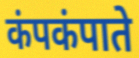
कंपकंपाते